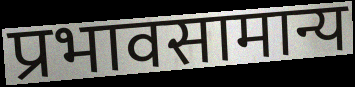
प्रभावसामान्य